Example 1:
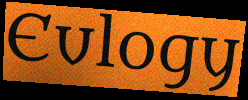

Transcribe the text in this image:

Eulogy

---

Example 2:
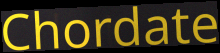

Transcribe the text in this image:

Chordate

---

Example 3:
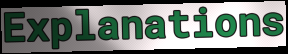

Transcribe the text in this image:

Explanations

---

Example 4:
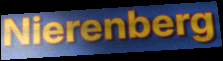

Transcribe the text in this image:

Nierenberg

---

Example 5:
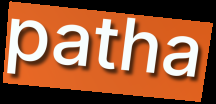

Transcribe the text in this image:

patha